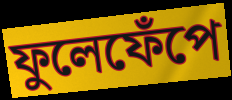
ফুলেফেঁপে